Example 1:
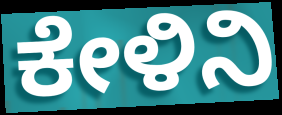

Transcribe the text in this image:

ಕೇಳಿನಿ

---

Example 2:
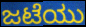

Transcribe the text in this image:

ಜಟೆಯು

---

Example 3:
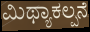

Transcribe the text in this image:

ಮಿಥ್ಯಾಕಲ್ಪನೆ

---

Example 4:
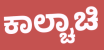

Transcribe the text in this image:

ಕಾಲ್ಚಾಚಿ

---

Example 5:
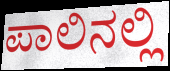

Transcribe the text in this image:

ಪಾಲಿನಲ್ಲಿ